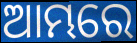
ଆମ୍ଭରେ